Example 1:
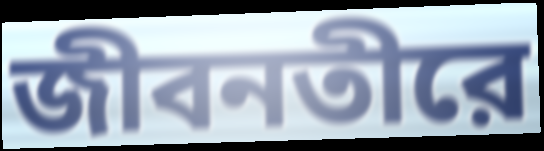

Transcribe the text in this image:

জীবনতীরে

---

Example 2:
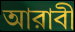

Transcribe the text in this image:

আরাবী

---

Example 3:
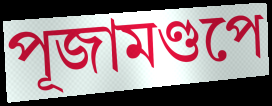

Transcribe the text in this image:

পূজামণ্ডপে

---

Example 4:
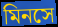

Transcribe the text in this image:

মিনসে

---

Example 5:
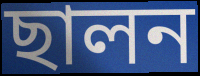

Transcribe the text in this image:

ছালন